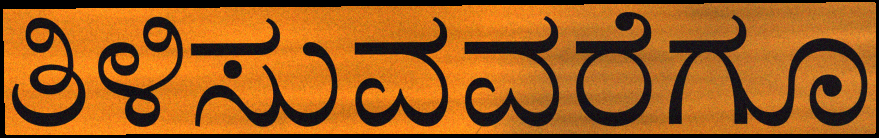
ತಿಳಿಸುವವರೆಗೂ